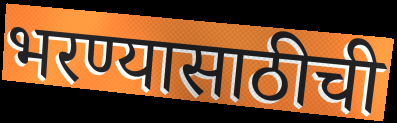
भरण्यासाठीची